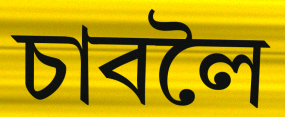
চাবলৈ